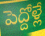
పెద్దోళ్లే